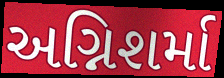
અગ્નિશર્મા